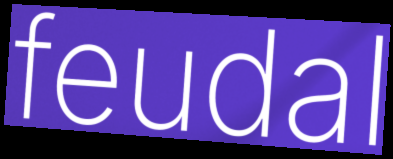
feudal